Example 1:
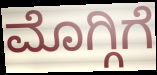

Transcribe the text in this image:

ಮೊಗ್ಗಿಗೆ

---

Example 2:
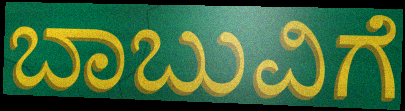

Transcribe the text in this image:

ಬಾಬುವಿಗೆ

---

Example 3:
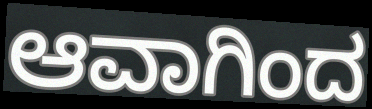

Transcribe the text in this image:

ಆವಾಗಿಂದ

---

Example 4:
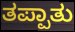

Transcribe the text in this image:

ತಪ್ಪಾತು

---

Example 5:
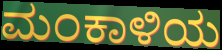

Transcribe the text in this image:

ಮಂಕಾಳಿಯ